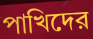
পাখিদের